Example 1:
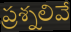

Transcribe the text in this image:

ప్రశ్నలివే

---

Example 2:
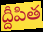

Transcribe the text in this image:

ద్దీపిత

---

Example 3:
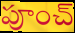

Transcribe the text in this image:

పూంచ్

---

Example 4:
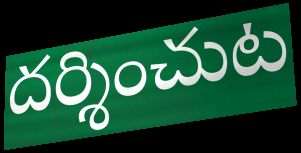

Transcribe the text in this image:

దర్శించుట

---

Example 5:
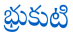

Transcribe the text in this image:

భ్రుకుటి